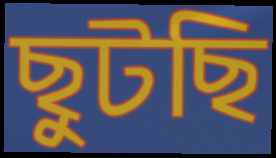
ছুটছি